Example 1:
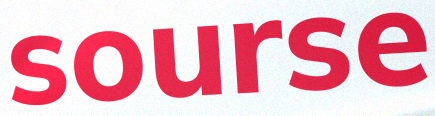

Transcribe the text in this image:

sourse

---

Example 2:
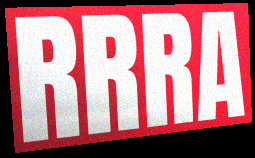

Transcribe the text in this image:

RRRA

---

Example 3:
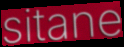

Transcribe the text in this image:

sitane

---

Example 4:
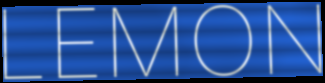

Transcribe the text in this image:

LEMON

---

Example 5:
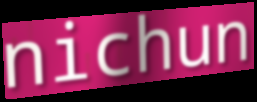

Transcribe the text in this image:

nichun